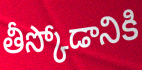
తీస్కోడానికి